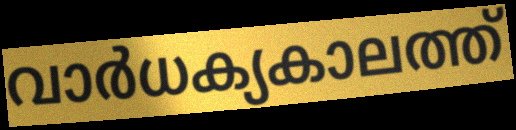
വാർധക്യകാലത്ത്